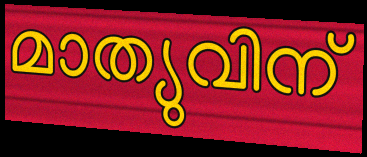
മാത്യുവിന്